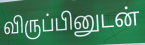
விருப்பினுடன்